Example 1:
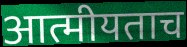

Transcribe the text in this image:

आत्मीयताच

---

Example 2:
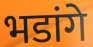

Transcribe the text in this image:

भडांगे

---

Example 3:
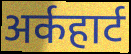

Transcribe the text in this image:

अर्कहार्ट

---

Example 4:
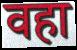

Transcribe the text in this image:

वहा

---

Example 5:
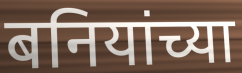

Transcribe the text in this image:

बनियांच्या